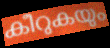
കീറുകയും